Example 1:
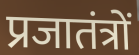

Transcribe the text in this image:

प्रजातंत्रों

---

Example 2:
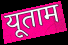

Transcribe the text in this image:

यूताम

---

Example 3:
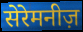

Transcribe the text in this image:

सेरेमनीज़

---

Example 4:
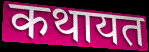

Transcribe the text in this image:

कथायत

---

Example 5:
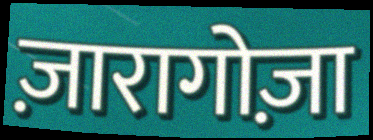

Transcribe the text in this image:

ज़ारागोज़ा